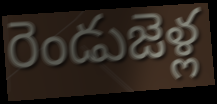
రెండుజెళ్ల